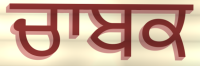
ਚਾਬਕ